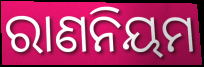
ରାଣନିୟମ